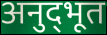
अनुद्भूत